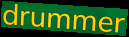
drummer